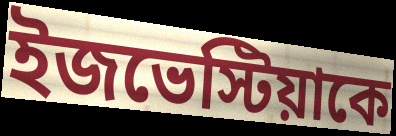
ইজভেস্টিয়াকে